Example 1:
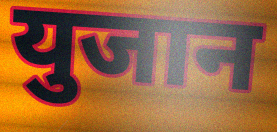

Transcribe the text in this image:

युजान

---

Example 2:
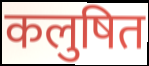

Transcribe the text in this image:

कलुषित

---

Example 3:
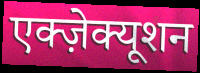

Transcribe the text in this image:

एक्ज़ेक्यूशन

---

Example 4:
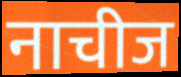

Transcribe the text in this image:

नाचीज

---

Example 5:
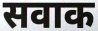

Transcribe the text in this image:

सवाक